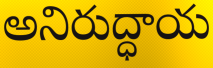
అనిరుద్ధాయ